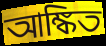
আঙ্কিত